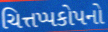
ચિત્તપ્પકોપનો